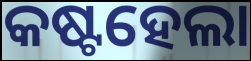
କଷ୍ଟହେଲା